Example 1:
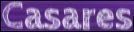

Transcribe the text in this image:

Casares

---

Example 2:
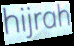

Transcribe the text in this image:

hijrah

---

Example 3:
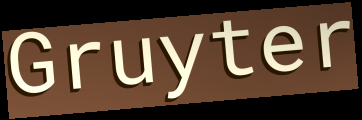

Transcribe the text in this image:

Gruyter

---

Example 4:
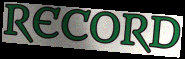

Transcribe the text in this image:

RECORD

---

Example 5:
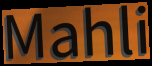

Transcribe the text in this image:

Mahli